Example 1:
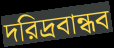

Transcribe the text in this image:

দরিদ্রবান্ধব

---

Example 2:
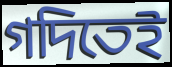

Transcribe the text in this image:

গদিতেই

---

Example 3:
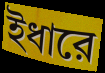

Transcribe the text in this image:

ইধারে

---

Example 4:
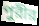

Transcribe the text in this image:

পুরীর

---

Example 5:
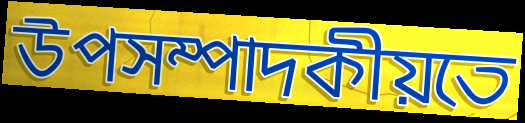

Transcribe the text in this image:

উপসম্পাদকীয়তে